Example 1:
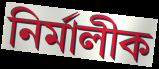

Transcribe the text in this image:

নিৰ্মালীক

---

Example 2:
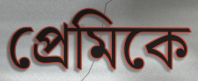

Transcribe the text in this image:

প্ৰেমিকে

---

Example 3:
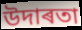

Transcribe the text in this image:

উদাৰতা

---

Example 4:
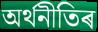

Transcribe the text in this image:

অৰ্থনীতিৰ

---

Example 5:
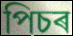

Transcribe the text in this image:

পিচৰ